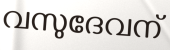
വസുദേവന്